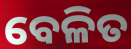
ବେଳିତ